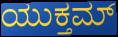
ಯುಕ್ತಮ್